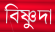
বিষ্ণুদা